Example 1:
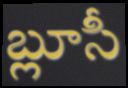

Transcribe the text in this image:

బ్లూసీ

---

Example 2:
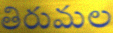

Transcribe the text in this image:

తిరుమల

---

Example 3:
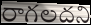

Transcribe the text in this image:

రాగలదని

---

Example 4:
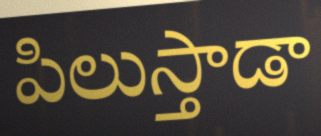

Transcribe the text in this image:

పిలుస్తాడా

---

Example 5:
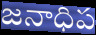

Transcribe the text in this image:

జనాధిప